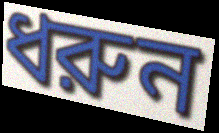
ধরুন